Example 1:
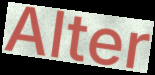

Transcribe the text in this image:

Alter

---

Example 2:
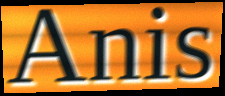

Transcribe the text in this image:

Anis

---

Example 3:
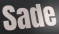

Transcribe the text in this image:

Sade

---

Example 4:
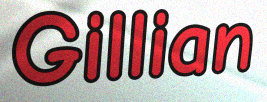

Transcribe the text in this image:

Gillian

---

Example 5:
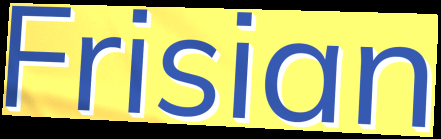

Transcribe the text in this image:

Frisian